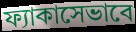
ফ্যাকাসেভাবে